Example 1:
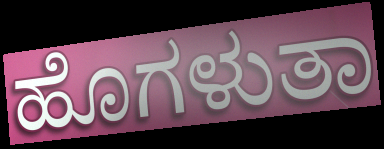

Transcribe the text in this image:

ಹೊಗಳುತಾ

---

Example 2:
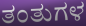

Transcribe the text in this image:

ತಂತುಗಳ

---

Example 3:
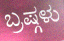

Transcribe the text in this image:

ಬ್ರಷ್ಗಳು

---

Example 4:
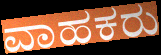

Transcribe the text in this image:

ವಾಹಕರು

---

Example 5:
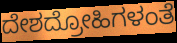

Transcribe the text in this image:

ದೇಶದ್ರೋಹಿಗಳಂತೆ